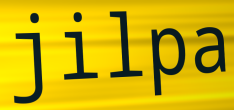
jilpa